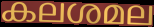
കലശമല